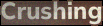
Crushing